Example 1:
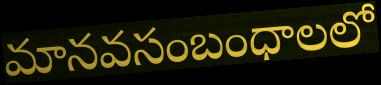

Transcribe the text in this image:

మానవసంబంధాలలో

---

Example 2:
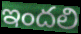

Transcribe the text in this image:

ఇందలి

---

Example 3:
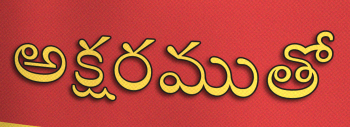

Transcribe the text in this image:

అక్షరముతో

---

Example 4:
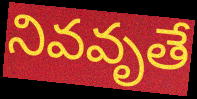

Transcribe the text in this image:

నివవృతే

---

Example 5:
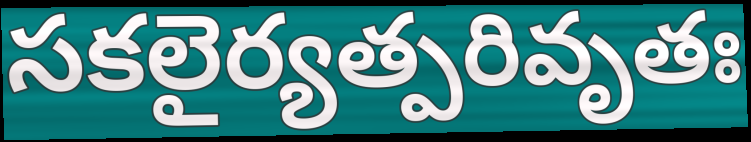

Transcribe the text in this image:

సకలైర్యత్పరివృతః